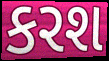
કરશ